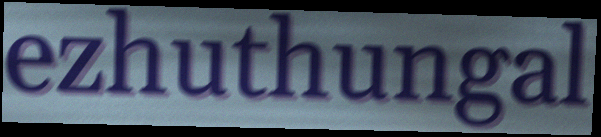
ezhuthungal